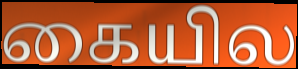
கையில